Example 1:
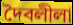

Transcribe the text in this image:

দৈবলীলা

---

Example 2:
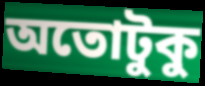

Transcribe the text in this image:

অতোটুকু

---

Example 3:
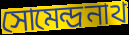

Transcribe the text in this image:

সোমেন্দ্রনাথ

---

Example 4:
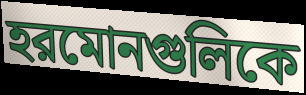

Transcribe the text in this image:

হরমোনগুলিকে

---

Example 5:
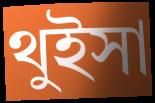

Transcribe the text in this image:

থুইসা